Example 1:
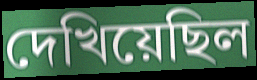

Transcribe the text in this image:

দেখিয়েছিল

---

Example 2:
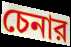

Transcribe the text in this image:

চেনার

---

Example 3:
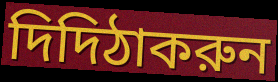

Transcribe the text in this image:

দিদিঠাকরুন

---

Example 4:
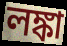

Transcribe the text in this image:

লঙ্কা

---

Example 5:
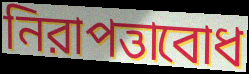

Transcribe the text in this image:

নিরাপত্তাবোধ